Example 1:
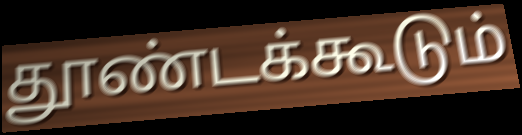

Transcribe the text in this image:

தூண்டக்கூடும்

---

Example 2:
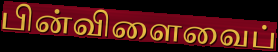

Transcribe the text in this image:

பின்விளைவைப்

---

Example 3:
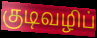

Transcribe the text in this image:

குடிவழிப்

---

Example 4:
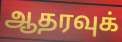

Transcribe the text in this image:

ஆதரவுக்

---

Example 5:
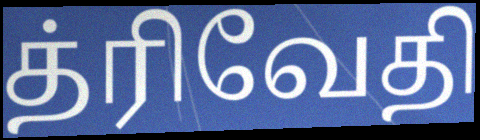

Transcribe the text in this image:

த்ரிவேதி